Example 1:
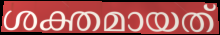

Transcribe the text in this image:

ശക്തമായത്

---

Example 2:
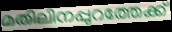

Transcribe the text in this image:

മതിലിനപ്പുറത്തേക്ക്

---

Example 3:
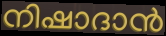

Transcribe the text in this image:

നിഷാദാൻ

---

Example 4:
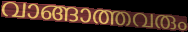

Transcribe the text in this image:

വാങ്ങാത്തവരും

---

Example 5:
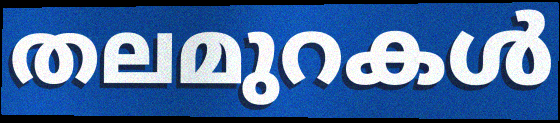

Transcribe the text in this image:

തലമുറകൾ